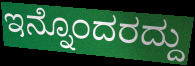
ಇನ್ನೊಂದರದ್ದು